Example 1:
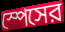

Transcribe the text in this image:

স্পেসের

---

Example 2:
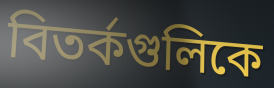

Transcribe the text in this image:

বিতর্কগুলিকে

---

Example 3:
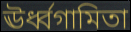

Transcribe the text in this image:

ঊর্ধ্বগামিতা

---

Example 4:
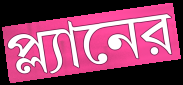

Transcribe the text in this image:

প্ল্যানের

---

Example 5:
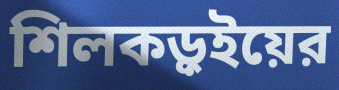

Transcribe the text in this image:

শিলকড়ুইয়ের